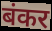
बंकर